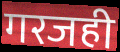
गरजही